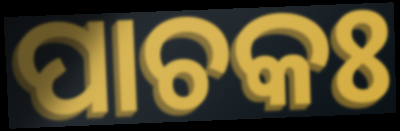
ପାଚକଃ